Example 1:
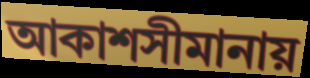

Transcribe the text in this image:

আকাশসীমানায়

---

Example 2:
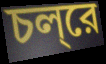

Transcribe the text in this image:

চল্‌রে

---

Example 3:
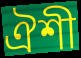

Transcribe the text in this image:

ঐশী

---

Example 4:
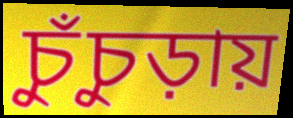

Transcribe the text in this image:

চুঁচুড়ায়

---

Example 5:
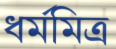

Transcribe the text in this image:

ধর্মমিত্র